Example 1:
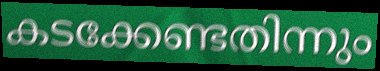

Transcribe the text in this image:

കടക്കേണ്ടതിന്നും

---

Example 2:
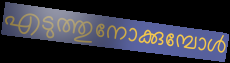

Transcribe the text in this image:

എടുത്തുനോക്കുമ്പോൾ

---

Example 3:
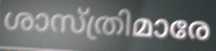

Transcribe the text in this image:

ശാസ്ത്രിമാരേ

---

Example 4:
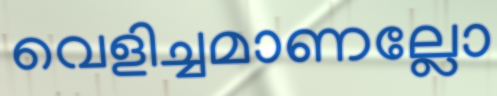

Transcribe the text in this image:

വെളിച്ചമാണല്ലോ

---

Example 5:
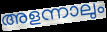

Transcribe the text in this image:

അളന്നാലും